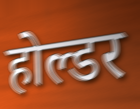
होल्डर